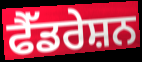
ਫੈੱਡਰੇਸ਼ਨ